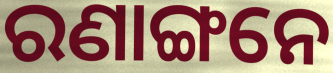
ରଣାଙ୍ଗନେ